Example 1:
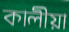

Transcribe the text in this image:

কালীয়া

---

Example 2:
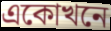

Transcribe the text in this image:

একোখনে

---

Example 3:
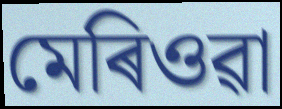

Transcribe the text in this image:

মেৰিওৱা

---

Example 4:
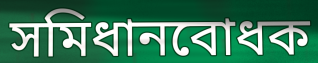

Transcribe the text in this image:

সমিধানবোধক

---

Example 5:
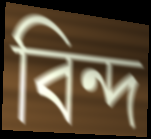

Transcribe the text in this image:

বিন্দ